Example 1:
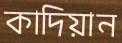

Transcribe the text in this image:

কাদিয়ান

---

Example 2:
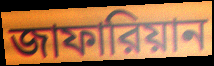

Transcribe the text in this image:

জাফারিয়ান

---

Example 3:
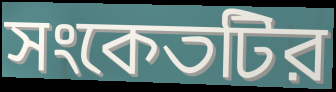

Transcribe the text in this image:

সংকেতটির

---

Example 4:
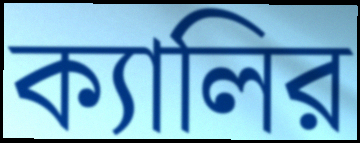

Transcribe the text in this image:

ক্যালির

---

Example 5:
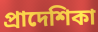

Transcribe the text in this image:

প্রাদেশিকা